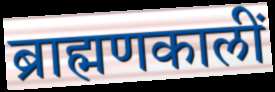
ब्राह्मणकालीं